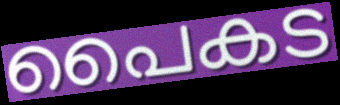
പൈകട